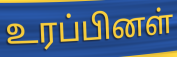
உரப்பினள்